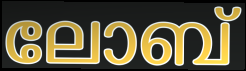
ലോബ്